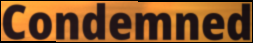
Condemned